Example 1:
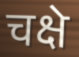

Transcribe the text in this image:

चक्षे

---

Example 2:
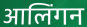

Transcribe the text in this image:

आलिंगन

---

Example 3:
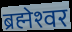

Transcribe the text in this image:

ब्रह्मेश्वर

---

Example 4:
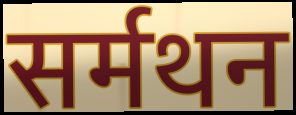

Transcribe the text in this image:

सर्मथन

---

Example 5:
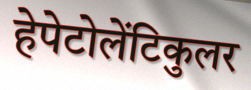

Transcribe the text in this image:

हेपेटोलेंटिकुलर